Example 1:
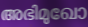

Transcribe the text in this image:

അഭിമുഖോ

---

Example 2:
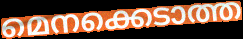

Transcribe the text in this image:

മെനക്കെടാത്ത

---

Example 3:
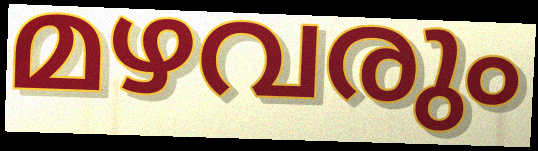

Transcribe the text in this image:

മഴവരും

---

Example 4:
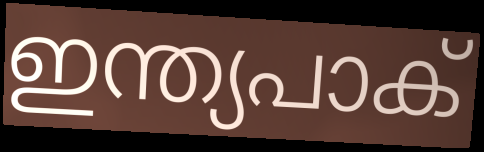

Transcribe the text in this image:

ഇന്ത്യപാക്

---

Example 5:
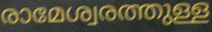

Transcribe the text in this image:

രാമേശ്വരത്തുള്ള